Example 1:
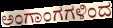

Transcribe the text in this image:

ಅಂಗಾಂಗಗಳಿಂದ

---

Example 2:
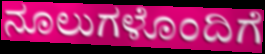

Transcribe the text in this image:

ನೂಲುಗಳೊಂದಿಗೆ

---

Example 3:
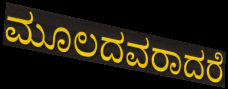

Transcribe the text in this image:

ಮೂಲದವರಾದರೆ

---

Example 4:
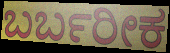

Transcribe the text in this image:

ಬರ್ಬರೀಕ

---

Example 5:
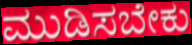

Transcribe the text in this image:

ಮುಡಿಸಬೇಕು